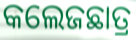
କଲେଜଛାତ୍ର